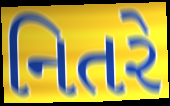
નિતરે